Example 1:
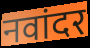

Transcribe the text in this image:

नवांदर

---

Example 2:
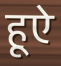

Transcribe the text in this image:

हूऐ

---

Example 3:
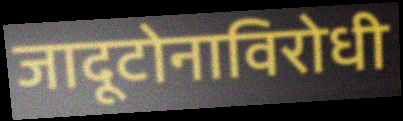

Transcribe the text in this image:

जादूटोनाविरोधी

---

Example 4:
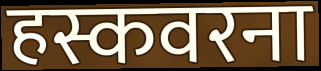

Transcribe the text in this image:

हस्कवरना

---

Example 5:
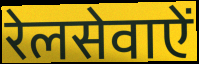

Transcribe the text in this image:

रेलसेवाऐं